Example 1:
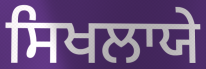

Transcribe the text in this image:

ਸਿਖਲਾਯੇ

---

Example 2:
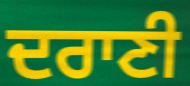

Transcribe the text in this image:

ਦਰਾਣੀ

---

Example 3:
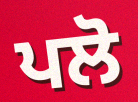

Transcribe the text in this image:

ਪਲੋ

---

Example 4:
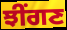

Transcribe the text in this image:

ਝੀਂਗਣ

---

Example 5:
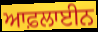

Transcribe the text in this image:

ਆਫ਼ਲਾਈਨ